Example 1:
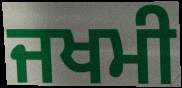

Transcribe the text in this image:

ਜਖਮੀ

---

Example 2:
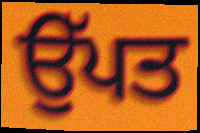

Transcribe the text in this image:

ਉੱਪਤ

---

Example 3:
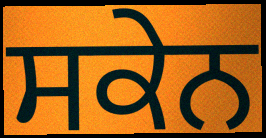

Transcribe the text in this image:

ਸਕੇਨ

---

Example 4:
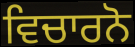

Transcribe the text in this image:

ਵਿਚਾਰਨੋ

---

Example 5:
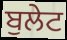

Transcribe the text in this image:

ਬੁਲੇਟ